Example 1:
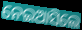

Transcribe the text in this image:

ନେଇଆସିଲେ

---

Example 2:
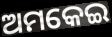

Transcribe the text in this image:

ଅମକେଇ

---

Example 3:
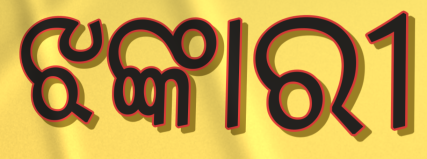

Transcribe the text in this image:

ଝଙ୍କାରୀ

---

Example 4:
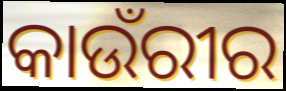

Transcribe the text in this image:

କାଉଁରୀର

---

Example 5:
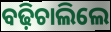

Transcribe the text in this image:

ବଢ଼ିଚାଲିଲେ